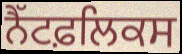
ਨੈੱਟਫ਼ਲਿਕਸ